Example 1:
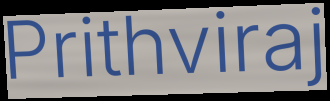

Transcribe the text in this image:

Prithviraj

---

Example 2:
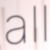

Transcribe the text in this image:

all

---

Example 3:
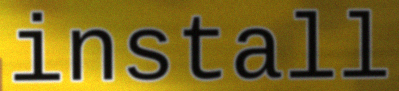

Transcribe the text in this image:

install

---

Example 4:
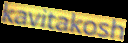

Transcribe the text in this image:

kavitakosh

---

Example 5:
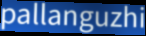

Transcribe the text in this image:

pallanguzhi